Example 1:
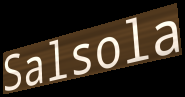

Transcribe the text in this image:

Salsola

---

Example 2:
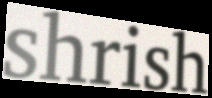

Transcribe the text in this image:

shrish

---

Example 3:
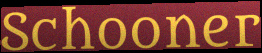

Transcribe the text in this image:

Schooner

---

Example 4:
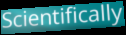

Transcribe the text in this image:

Scientifically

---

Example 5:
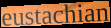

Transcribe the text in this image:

eustachian